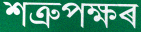
শত্ৰুপক্ষৰ